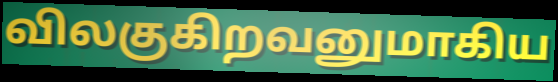
விலகுகிறவனுமாகிய